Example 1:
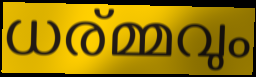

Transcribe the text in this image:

ധര്മ്മവും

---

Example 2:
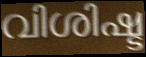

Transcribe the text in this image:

വിശിഷ്ട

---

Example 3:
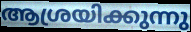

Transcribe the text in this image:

ആശ്രയിക്കുന്നു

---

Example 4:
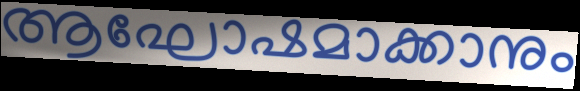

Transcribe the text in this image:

ആഘോഷമാക്കാനും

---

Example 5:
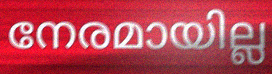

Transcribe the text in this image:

നേരമായില്ല